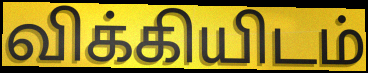
விக்கியிடம்